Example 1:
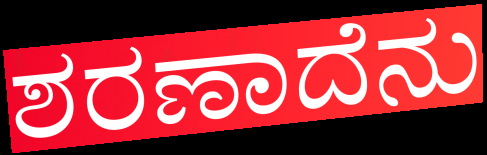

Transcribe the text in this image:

ಶರಣಾದೆನು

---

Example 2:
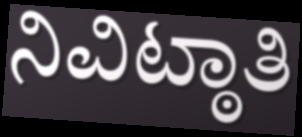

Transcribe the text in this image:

ನಿವಿಟ್ಠಾತಿ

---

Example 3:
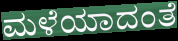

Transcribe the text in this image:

ಮಳೆಯಾದಂತೆ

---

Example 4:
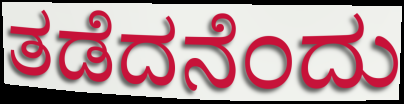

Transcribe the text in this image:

ತಡೆದನೆಂದು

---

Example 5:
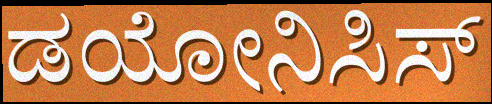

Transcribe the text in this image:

ಡಯೋನಿಸಿಸ್